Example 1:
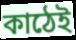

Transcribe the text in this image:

কাঠেই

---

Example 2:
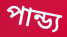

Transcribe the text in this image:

পান্ড্য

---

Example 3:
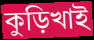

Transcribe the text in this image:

কুড়িখাই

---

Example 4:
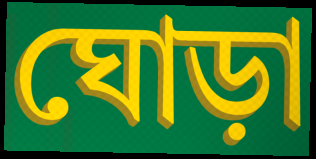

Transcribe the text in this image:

ঘোড়া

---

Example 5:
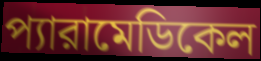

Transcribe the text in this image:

প্যারামেডিকেল